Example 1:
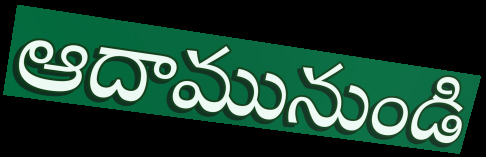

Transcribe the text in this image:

ఆదామునుండి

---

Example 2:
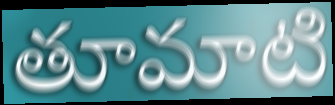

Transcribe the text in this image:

తూమాటి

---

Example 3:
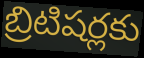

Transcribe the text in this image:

బ్రిటిషర్లకు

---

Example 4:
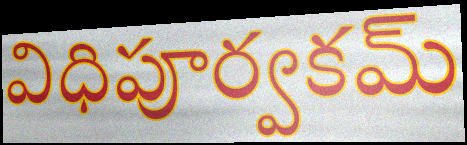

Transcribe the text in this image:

విధిపూర్వకమ్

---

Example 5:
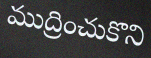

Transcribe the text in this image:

ముద్రించుకొని